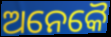
ଅନେକୈ